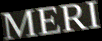
MERI